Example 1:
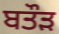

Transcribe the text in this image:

ਬਤੌੜ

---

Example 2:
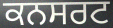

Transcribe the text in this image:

ਕਨਸਰਟ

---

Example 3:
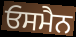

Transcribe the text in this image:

ਓਸਮੈਨ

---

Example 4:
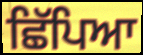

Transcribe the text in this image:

ਛਿੱਪਿਆ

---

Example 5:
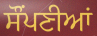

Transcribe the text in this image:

ਸੌਂਪਣੀਆਂ